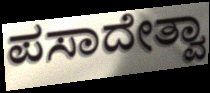
ಪಸಾದೇತ್ವಾ